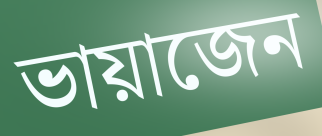
ভায়াজেন